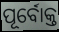
ପୂର୍ବୋକ୍ତ